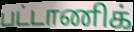
பட்டாணிக்